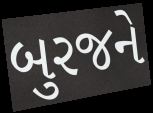
બુરજને